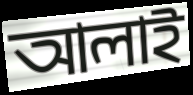
আলাই